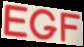
EGF